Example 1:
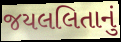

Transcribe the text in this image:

જયલલિતાનું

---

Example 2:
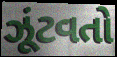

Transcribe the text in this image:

ઝૂંટવતો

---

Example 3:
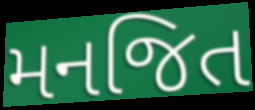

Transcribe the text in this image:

મનજિત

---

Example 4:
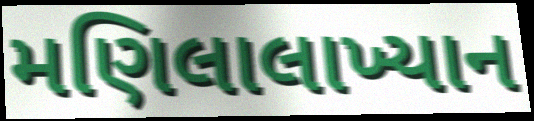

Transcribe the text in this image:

મણિલાલાખ્યાન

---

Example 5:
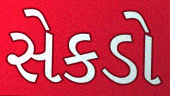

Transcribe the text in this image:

સેકડો